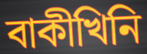
বাকীখিনি